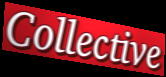
Collective